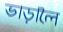
ভাড়ালৈ